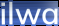
ilwa